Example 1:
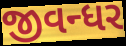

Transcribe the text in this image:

જીવન્ધર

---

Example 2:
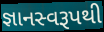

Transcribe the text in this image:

જ્ઞાનસ્વરૂપથી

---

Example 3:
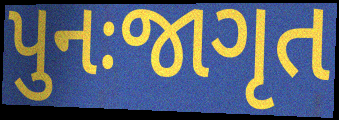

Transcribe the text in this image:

પુનઃજાગૃત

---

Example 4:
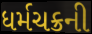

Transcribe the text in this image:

ધર્મચક્રની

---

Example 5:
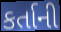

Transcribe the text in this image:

કર્તાની